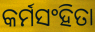
କର୍ମସଂହିତା